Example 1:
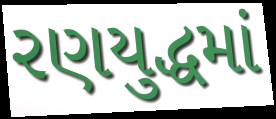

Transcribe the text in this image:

રણયુદ્ધમાં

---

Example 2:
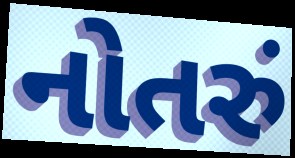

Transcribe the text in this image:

નોતરું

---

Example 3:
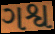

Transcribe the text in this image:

ગશ્વ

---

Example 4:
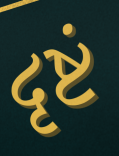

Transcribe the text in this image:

દૃષ્ટં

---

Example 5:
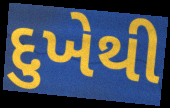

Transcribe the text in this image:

દુખેથી